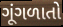
ગૂંગળાતો